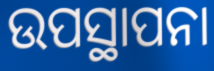
ଉପସ୍ଥାପନା